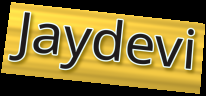
Jaydevi